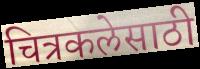
चित्रकलेसाठी